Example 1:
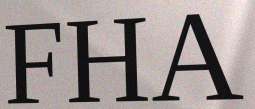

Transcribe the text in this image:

FHA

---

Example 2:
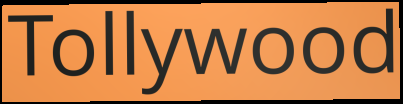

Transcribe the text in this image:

Tollywood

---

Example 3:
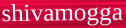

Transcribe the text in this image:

shivamogga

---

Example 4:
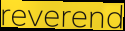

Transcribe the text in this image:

reverend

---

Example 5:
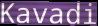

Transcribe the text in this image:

Kavadi